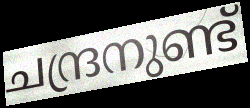
ചന്ദ്രനുണ്ട്